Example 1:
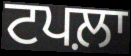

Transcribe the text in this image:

ਟਪਲ਼ਾ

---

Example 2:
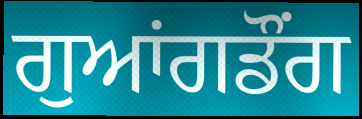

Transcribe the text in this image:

ਗੁਆਂਗਡੌਂਗ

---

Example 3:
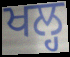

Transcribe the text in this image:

ਖਲ੍ਹ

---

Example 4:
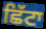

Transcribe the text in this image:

ਛਿੱਟਾ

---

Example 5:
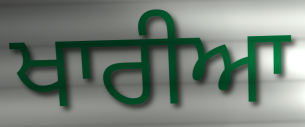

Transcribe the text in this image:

ਖਾਰੀਆ